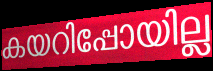
കയറിപ്പോയില്ല